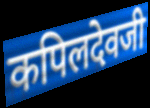
कपिलदेवजी